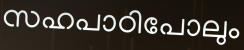
സഹപാഠിപോലും